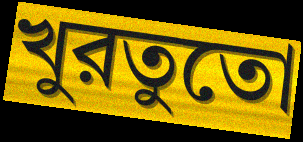
খুরতুতো